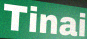
Tinai